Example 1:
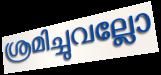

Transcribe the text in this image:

ശ്രമിച്ചുവല്ലോ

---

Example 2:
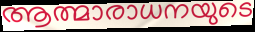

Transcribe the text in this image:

ആത്മാരാധനയുടെ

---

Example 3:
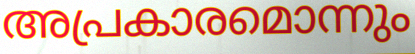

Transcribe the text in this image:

അപ്രകാരമൊന്നും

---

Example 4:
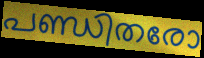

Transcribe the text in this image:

പണ്ഡിതരോ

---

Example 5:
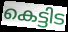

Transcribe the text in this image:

കെട്ടിട